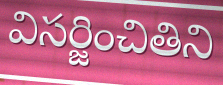
విసర్జించితిని